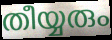
തീയ്യരും